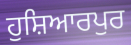
ਹੁਸ਼ਿਆਰਪੁਰ